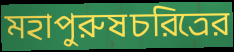
মহাপুরুষচরিত্রের